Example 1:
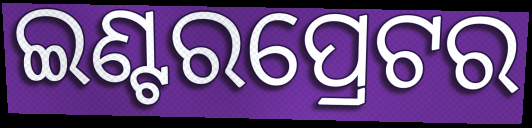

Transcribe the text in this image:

ଇଣ୍ଟରପ୍ରେଟର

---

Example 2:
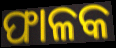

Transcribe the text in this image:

ଫାଳକ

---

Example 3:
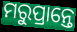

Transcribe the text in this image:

ମରୁପ୍ରାନ୍ତେ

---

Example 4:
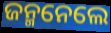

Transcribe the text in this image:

ଜନ୍ମନେଲେ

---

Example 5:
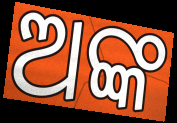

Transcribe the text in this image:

ଅଙ୍କ